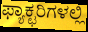
ಫ್ಯಾಕ್ಟರಿಗಳಲ್ಲಿ